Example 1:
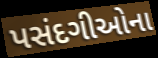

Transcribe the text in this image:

પસંદગીઓના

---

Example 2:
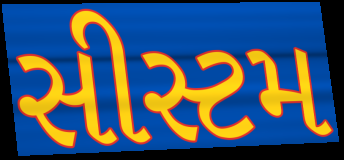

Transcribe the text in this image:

સીસ્ટમ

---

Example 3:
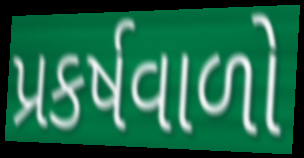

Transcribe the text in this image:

પ્રકર્ષવાળો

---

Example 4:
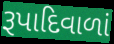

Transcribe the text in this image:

રૂપાદિવાળાં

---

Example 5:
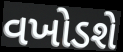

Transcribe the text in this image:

વખોડશે